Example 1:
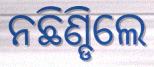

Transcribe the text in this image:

ନଛିଣ୍ଡିଲେ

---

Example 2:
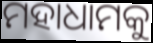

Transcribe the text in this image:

ମହାଧାମକୁ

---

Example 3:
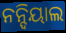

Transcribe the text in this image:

ନନ୍ଦିୟାଲ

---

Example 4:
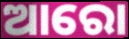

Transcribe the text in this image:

ଆରୋ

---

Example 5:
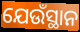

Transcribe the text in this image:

ଯେଉଁସ୍ଥାନ